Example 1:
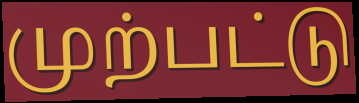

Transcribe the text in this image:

முற்பட்டு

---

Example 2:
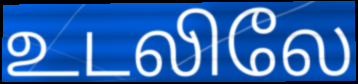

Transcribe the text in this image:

உடலிலே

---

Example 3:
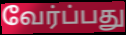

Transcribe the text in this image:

வேர்ப்பது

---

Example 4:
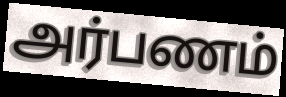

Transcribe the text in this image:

அர்பணம்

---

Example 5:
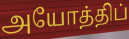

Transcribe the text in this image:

அயோத்திப்